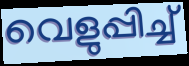
വെളുപ്പിച്ച്